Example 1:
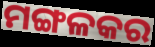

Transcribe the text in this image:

ମଙ୍ଗଳକର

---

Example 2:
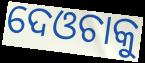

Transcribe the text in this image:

ଦେଓଚାକୁ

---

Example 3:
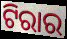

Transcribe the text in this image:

ଟିରାର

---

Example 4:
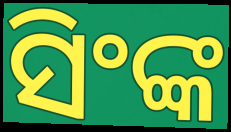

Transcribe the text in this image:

ସିଂଙ୍କ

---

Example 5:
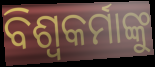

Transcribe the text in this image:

ବିଶ୍ଵକର୍ମାଙ୍କୁ